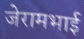
जेरामभाई